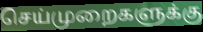
செய்முறைகளுக்கு